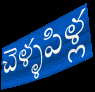
చెళ్ళపిళ్ల